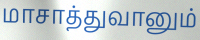
மாசாத்துவானும்